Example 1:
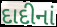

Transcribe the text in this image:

દાદીનાં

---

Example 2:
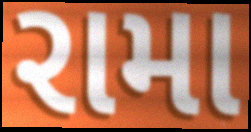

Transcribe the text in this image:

રામા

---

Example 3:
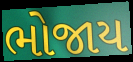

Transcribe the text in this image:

ભોજાય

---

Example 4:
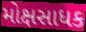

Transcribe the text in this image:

મોક્ષસાધક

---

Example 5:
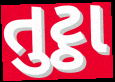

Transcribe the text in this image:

તુટ્ઠા